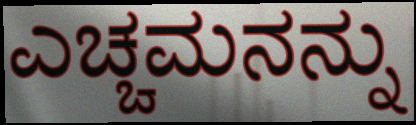
ಎಚ್ಚಮನನ್ನು